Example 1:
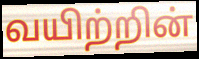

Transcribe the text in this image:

வயிற்றின்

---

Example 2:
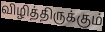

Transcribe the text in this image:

விழித்திருக்கும்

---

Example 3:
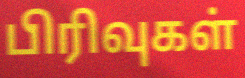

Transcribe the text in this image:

பிரிவுகள்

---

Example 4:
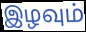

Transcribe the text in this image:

இழவும்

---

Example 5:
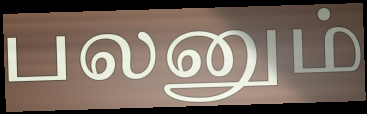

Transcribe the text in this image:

பலனும்